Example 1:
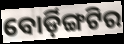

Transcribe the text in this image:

ବୋର୍ଡ଼ିଙ୍ଗଟିର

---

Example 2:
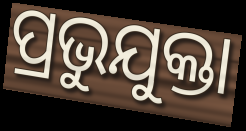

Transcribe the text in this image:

ପ୍ରଭୁଯୁକ୍ତା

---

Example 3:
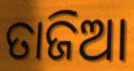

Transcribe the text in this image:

ତାଜିଆ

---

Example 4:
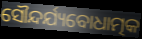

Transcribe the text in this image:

ସୌନ୍ଦର୍ଯ୍ୟବୋଧାତ୍ମକ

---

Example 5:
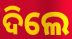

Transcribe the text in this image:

ଦିଲେ